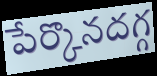
పేర్కొనదగ్గ